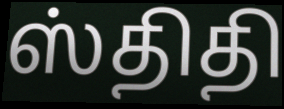
ஸ்திதி